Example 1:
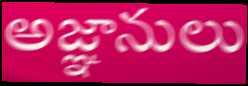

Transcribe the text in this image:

అజ్ఞానులు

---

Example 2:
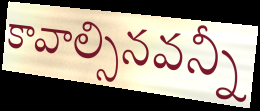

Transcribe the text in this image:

కావాల్సినవన్నీ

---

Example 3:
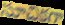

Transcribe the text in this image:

సూచికగా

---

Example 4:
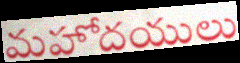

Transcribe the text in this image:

మహోదయులు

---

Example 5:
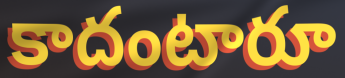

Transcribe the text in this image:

కాదంటారూ